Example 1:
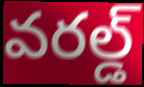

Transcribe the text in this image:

వరల్డ్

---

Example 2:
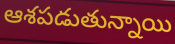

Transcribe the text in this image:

ఆశపడుతున్నాయి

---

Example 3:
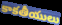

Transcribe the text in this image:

కాకతీయులు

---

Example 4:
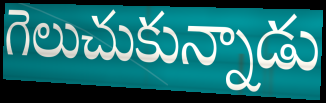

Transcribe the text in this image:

గెలుచుకున్నాడు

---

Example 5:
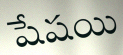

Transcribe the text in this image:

షేషయి